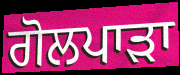
ਗੋਲਪਾੜਾ